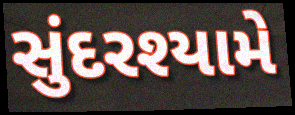
સુંદરશ્યામે